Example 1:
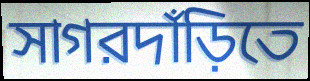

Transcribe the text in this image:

সাগরদাঁড়িতে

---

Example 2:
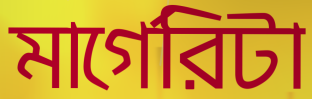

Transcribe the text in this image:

মার্গেরিটা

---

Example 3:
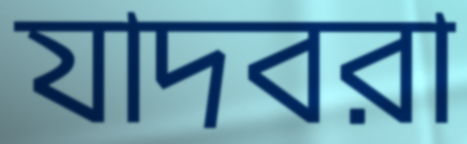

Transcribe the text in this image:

যাদবরা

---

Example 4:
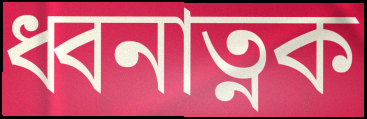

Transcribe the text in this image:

ধ্বনাত্নক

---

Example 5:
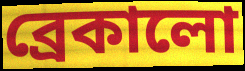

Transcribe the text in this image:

ব্রেকালো